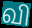
வி